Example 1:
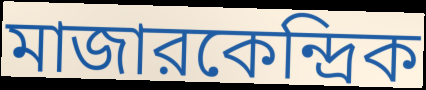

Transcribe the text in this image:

মাজারকেন্দ্রিক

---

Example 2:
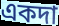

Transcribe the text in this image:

একদা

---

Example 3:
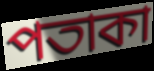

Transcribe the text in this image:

পতাকা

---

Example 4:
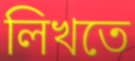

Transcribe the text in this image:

লিখতে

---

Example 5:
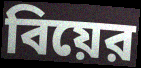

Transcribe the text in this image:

বিয়ের